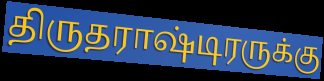
திருதராஷ்டிரருக்கு